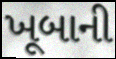
ખૂબાની